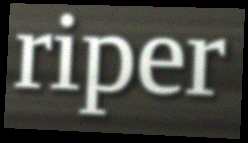
riper